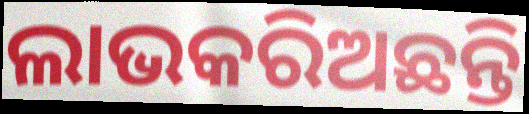
ଲାଭକରିଅଛନ୍ତି